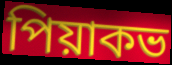
পিয়াকভ